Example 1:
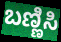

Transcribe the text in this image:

ಬಣ್ಣಿಸಿ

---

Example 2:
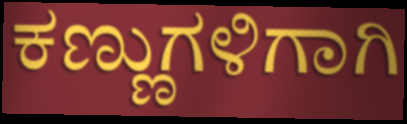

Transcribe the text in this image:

ಕಣ್ಣುಗಳಿಗಾಗಿ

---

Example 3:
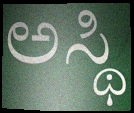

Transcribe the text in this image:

ಅಸ್ಥಿ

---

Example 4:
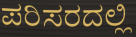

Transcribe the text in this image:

ಪರಿಸರದಲ್ಲಿ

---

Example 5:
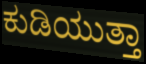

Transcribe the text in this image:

ಕುಡಿಯುತ್ತಾ